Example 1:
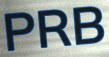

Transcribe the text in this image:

PRB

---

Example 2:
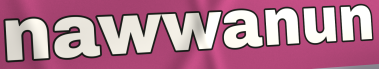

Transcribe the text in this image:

nawwanun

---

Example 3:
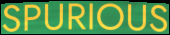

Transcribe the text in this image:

SPURIOUS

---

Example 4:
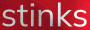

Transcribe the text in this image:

stinks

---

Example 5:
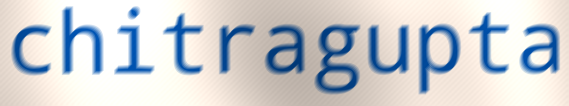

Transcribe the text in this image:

chitragupta